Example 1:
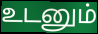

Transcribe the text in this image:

உடனும்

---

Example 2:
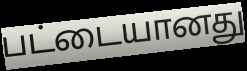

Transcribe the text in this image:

பட்டையானது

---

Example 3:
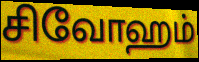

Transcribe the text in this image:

சிவோஹம்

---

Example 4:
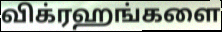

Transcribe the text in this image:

விக்ரஹங்களை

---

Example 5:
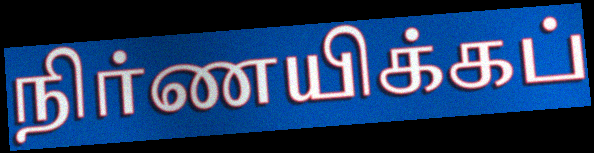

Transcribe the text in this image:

நிர்ணயிக்கப்